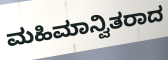
ಮಹಿಮಾನ್ವಿತರಾದ